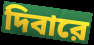
দিবারে